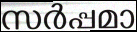
സർപ്പമാ